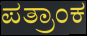
ಪತ್ರಾಂಕ